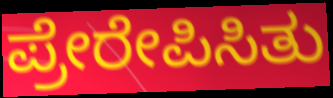
ಪ್ರೇರೇಪಿಸಿತು